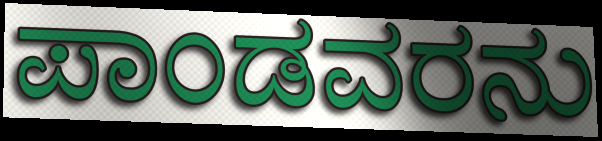
ಪಾಂಡವರನು